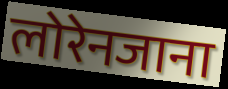
लोरेनजाना